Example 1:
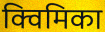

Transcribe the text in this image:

क्विमिका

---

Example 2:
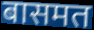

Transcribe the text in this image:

बासमत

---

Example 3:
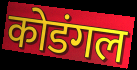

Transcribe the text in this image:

कोडंगल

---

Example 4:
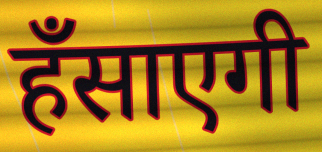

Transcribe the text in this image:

हँसाएगी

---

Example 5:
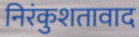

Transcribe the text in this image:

निरंकुशतावाद